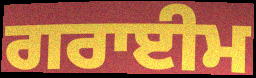
ਗਰਾਈਮ